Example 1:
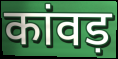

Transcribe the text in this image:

कांवड़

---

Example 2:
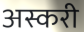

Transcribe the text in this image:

अस्करी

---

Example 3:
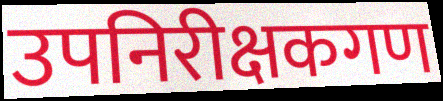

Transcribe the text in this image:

उपनिरीक्षकगण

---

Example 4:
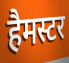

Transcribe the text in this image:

हैमस्टर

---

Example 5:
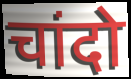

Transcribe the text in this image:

चांदो